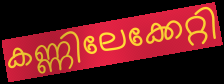
കണ്ണിലേക്കേറ്റി